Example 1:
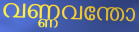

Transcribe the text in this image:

വണ്ണവന്തോ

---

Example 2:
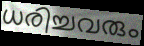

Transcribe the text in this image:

ധരിച്ചവരും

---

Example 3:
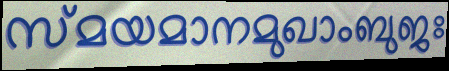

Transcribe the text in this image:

സ്മയമാനമുഖാംബുജഃ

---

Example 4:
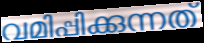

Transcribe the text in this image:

വമിപ്പിക്കുന്നത്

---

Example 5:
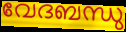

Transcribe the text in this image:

വേദബന്ധു